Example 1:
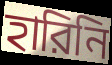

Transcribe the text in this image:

হারিনি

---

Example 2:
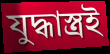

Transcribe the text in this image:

যুদ্ধাস্ত্রই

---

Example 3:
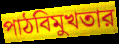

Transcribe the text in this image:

পাঠবিমুখতার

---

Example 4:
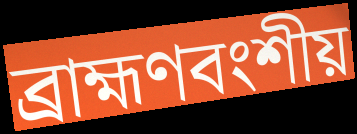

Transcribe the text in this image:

ব্রাহ্মণবংশীয়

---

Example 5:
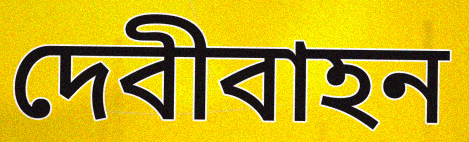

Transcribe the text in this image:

দেবীবাহন